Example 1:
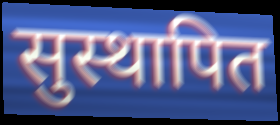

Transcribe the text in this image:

सुस्थापित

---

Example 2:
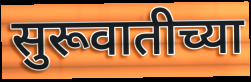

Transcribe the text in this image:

सुरूवातीच्या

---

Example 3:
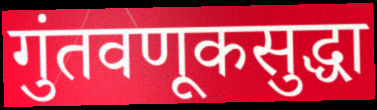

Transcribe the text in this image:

गुंतवणूकसुद्धा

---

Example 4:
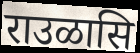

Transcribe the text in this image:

राउळासि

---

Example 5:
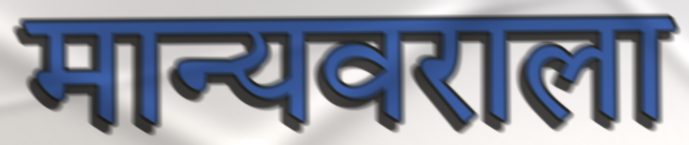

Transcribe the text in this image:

मान्यवराला